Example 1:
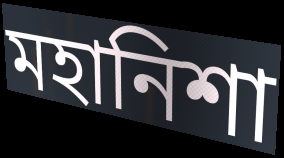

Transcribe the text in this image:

মহানিশা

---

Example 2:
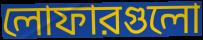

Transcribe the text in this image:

লোফারগুলো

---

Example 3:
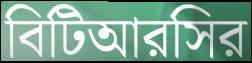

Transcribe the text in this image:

বিটিআরসির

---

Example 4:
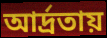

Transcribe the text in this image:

আর্দ্রতায়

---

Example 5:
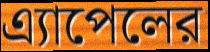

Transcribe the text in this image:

এ্যাপেলের